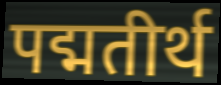
पद्मतीर्थ